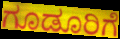
ಗೂಡೂರಿಗೆ